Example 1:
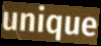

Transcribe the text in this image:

unique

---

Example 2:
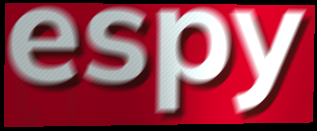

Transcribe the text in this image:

espy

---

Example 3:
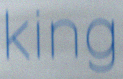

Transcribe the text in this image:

king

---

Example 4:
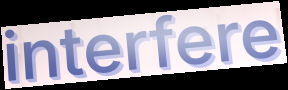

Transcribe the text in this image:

interfere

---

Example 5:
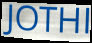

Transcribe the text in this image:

JOTHI